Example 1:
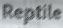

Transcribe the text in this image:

Reptile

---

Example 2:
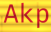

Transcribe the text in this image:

Akp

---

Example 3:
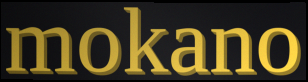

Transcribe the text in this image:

mokano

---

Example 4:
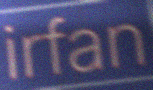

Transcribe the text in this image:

irfan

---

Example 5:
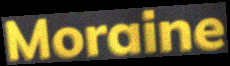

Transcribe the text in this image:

Moraine